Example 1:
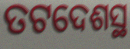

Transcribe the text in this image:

ତଟଦେଶସ୍ଥ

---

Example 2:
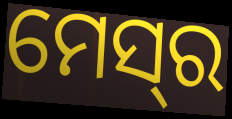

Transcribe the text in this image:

ମେସ୍‍ର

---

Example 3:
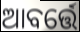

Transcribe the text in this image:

ଆବର୍ତ୍ତେ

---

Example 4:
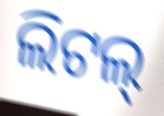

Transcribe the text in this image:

ଲିଟଲ୍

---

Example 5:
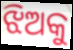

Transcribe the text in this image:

ଝିଅକୁ